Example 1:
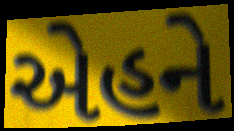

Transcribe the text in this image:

એહને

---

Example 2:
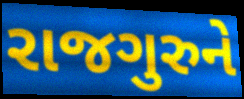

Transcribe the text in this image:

રાજગુરુને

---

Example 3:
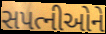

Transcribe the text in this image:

સપત્નીઓને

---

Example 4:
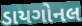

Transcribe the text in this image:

ડાયગોનલ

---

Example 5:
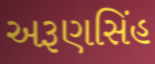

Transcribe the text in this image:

અરૂણસિંહ